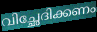
വിച്ഛേദിക്കണം